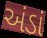
અંડાં